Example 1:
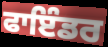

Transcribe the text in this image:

ਫਾਇੰਡਰ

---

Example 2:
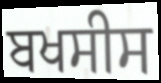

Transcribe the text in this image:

ਬਖਸੀਸ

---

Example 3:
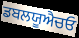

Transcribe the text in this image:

ਡਬਲਯੂਐਚਓ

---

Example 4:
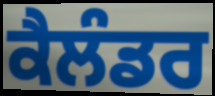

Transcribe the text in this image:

ਕੈਲੰਡਰ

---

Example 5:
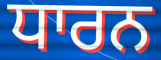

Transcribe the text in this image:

ਧਾਰਨ